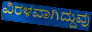
ವಿರಳವಾಗಿದ್ದುವು